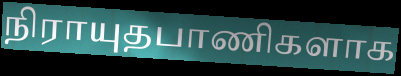
நிராயுதபாணிகளாக